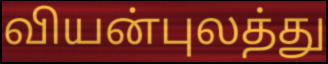
வியன்புலத்து